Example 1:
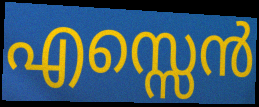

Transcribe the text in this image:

എസ്സെൻ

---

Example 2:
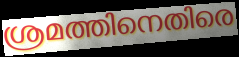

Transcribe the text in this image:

ശ്രമത്തിനെതിരെ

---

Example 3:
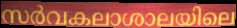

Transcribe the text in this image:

സർവകലാശാലയിലെ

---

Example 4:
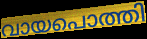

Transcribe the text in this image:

വായപൊത്തി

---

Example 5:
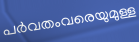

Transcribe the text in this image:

പർവതംവരെയുമുള്ള